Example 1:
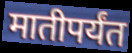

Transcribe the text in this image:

मातीपर्यंत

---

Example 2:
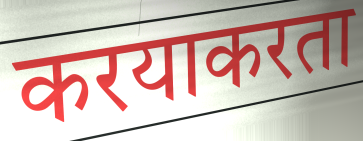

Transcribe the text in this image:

करयाकरता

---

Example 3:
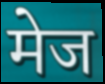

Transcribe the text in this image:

मेज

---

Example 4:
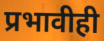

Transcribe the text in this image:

प्रभावीही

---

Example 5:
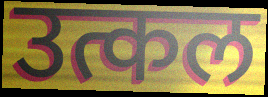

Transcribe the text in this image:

उत्कल